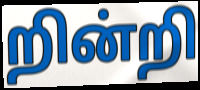
றின்றி